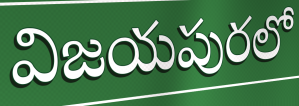
విజయపురలో